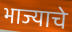
भाज्याचे